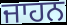
ਜਾਹਨ